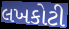
લખકોટી